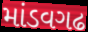
માંડવગઢ